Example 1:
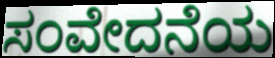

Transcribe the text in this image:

ಸಂವೇದನೆಯ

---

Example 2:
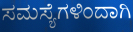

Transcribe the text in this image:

ಸಮಸ್ಯೆಗಳಿಂದಾಗಿ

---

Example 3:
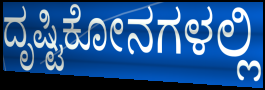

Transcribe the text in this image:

ದೃಷ್ಟಿಕೋನಗಳಲ್ಲಿ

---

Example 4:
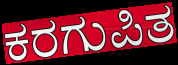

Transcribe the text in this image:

ಕರಗುಪಿತ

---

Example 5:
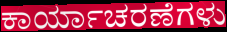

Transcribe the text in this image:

ಕಾರ್ಯಾಚರಣೆಗಳು